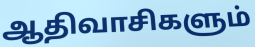
ஆதிவாசிகளும்